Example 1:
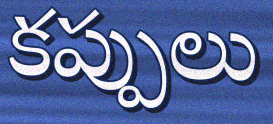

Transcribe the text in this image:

కప్పులు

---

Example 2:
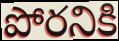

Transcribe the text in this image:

పోరనికి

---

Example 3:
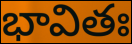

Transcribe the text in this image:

భావితః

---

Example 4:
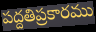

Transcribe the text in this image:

పద్దతిప్రకారము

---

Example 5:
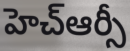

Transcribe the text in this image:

హెచ్ఆర్సీ